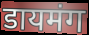
डायमंग